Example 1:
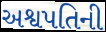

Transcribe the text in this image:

અશ્વપતિની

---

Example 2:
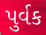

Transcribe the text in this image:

પુર્વક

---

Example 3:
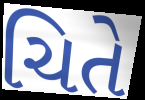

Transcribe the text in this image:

ચિતે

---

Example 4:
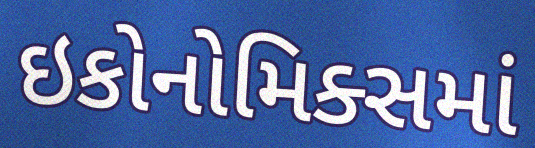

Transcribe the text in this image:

ઇકોનોમિક્સમાં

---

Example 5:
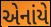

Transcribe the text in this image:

એનાંયે